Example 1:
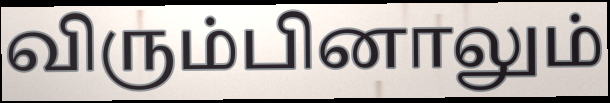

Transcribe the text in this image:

விரும்பினாலும்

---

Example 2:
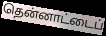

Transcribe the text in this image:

தென்னாட்டைப்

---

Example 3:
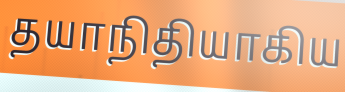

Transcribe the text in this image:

தயாநிதியாகிய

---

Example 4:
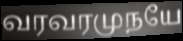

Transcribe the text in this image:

வரவரமுநயே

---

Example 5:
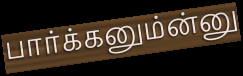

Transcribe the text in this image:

பார்க்கனும்ன்னு